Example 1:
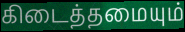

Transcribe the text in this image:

கிடைத்தமையும்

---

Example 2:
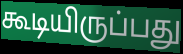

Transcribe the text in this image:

கூடியிருப்பது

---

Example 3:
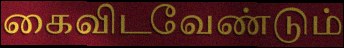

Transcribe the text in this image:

கைவிடவேண்டும்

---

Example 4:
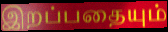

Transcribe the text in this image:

இறப்பதையும்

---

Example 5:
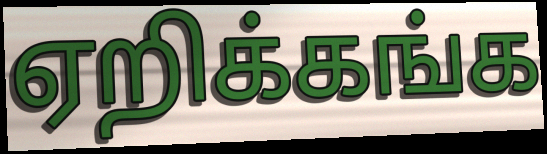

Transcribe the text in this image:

ஏறிக்கங்க